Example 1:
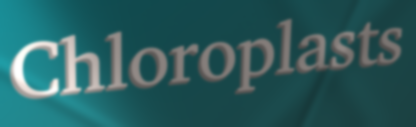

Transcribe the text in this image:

Chloroplasts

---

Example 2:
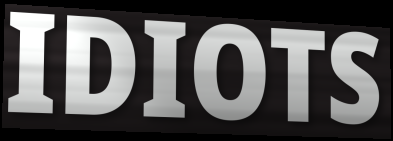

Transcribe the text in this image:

IDIOTS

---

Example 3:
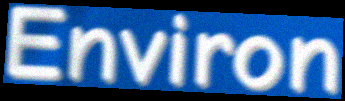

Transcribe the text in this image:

Environ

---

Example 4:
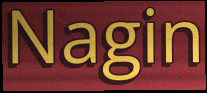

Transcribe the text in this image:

Nagin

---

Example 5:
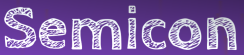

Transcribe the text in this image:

Semicon